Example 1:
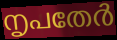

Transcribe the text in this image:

നൃപതേർ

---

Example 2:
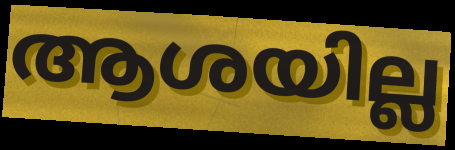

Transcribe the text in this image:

ആശയില്ല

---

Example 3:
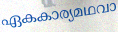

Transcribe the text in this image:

ഏകകാര്യമഥവാ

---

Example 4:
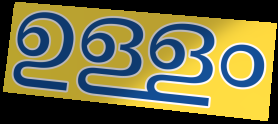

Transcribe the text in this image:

ഉള്ളം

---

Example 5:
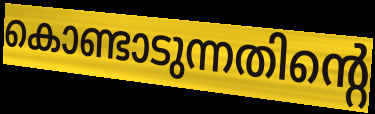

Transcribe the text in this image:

കൊണ്ടാടുന്നതിന്റെ